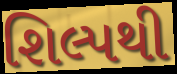
શિલ્પથી